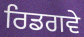
ਰਿਡਗਵੇ